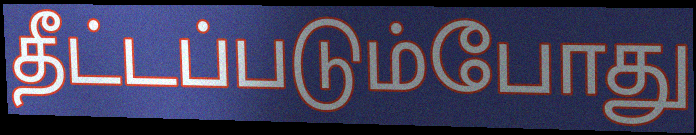
தீட்டப்படும்போது